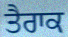
ਤੈਰਾਕ